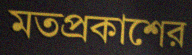
মতপ্রকাশের